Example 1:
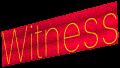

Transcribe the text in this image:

Witness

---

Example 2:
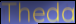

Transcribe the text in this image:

Theda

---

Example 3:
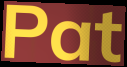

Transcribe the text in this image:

Pat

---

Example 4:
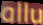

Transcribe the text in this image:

allu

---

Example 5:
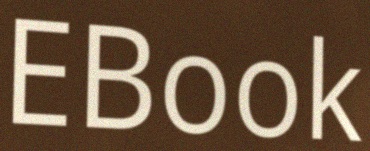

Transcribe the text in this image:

EBook